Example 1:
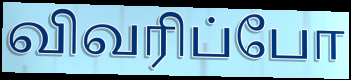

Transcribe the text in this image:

விவரிப்போ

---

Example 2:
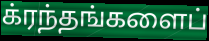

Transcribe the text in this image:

க்ரந்தங்களைப்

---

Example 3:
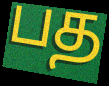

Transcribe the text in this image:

பத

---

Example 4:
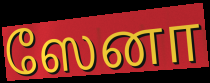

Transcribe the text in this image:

ஸேனா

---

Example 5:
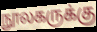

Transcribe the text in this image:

நூலகருக்கு